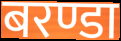
बरण्डा